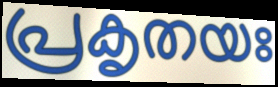
പ്രകൃതയഃ